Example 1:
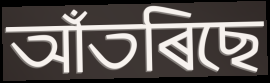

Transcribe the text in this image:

আঁতৰিছে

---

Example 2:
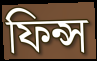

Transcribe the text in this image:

ফিন্স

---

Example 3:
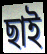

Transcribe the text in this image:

ছাই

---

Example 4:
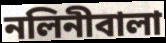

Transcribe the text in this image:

নলিনীবালা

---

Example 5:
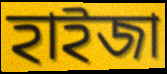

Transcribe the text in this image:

হাইজা